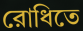
রোধিতে